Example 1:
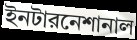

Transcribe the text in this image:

ইনটারনেশানাল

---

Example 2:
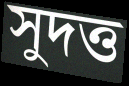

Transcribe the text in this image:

সুদত্ত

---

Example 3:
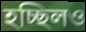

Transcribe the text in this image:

হচ্ছিলও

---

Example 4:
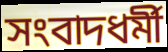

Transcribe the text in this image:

সংবাদধর্মী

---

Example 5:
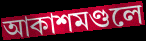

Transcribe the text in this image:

আকাশমণ্ডলে